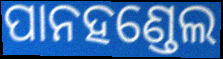
ପାନହଣ୍ଡେଲ